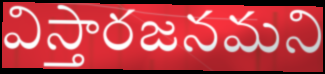
విస్తారజనమని